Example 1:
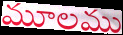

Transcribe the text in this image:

మూలము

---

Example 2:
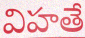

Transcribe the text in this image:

విహతే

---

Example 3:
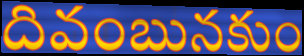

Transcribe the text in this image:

దివంబునకుం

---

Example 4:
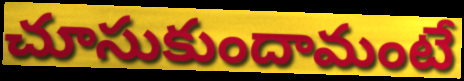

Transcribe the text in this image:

చూసుకుందామంటే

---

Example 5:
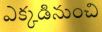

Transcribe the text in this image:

ఎక్కడినుంచి